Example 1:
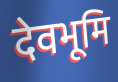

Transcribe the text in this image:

देवभूमि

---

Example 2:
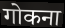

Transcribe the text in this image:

गोकना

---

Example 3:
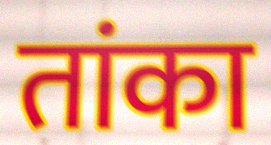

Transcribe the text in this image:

तांका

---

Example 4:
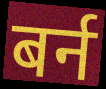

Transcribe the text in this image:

बर्न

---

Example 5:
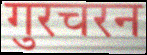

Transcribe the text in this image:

गुरचरन